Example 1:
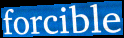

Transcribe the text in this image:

forcible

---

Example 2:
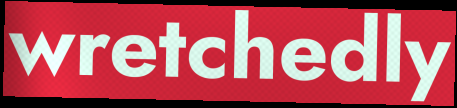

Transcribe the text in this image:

wretchedly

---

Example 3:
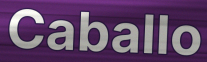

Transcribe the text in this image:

Caballo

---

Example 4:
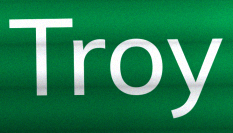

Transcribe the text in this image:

Troy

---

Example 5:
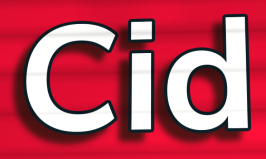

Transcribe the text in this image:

Cid